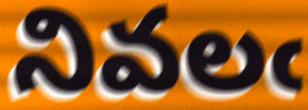
నివలఁ